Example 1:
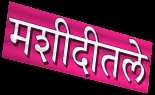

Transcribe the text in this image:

मशीदीतले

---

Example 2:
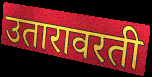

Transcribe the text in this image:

उतारावरती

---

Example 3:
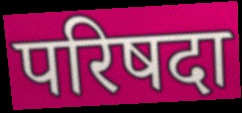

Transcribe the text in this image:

परिषदा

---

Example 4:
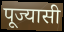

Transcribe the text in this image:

पूज्यासी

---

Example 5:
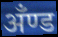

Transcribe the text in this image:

अँण्ड